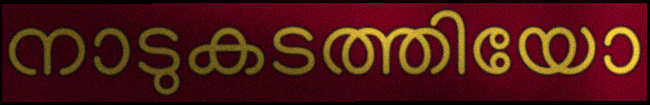
നാടുകടത്തിയോ